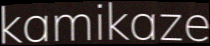
kamikaze